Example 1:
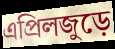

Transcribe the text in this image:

এপ্রিলজুড়ে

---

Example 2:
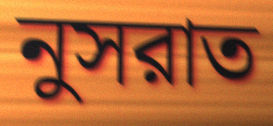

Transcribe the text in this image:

নুসরাত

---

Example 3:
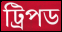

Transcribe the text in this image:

ট্রিপড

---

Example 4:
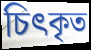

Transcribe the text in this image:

চিৎকৃত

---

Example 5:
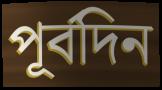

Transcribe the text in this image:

পূর্বদিন